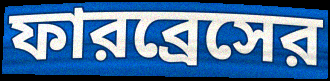
ফারব্রেসের